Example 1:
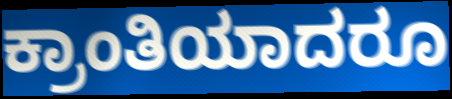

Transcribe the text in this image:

ಕ್ರಾಂತಿಯಾದರೂ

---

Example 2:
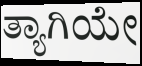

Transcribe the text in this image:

ತ್ಯಾಗಿಯೇ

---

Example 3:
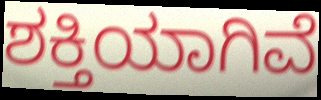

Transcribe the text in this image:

ಶಕ್ತಿಯಾಗಿವೆ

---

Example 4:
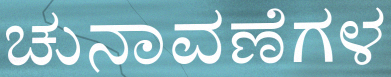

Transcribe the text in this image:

ಚುನಾವಣೆಗಳ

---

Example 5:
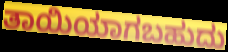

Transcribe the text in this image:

ತಾಯಿಯಾಗಬಹುದು